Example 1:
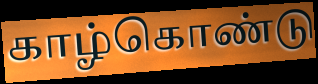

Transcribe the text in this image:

காழ்கொண்டு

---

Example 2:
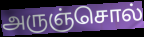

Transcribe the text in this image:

அருஞ்சொல்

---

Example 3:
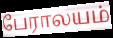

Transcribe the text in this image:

பேராலயம்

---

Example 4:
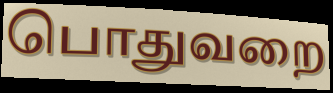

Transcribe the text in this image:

பொதுவறை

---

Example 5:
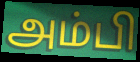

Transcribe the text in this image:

அம்பி